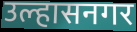
उल्हासनगर